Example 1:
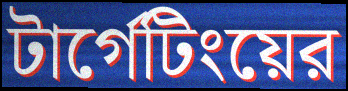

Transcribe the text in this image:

টার্গেটিংয়ের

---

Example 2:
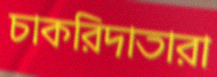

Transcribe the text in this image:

চাকরিদাতারা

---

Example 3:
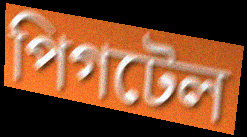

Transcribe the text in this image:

পিগটেল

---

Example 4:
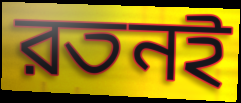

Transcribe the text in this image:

রতনই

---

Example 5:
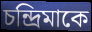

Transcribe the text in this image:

চন্দ্রিমাকে